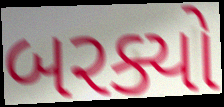
બરક્યો